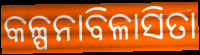
କଳ୍ପନାବିଳାସିତା